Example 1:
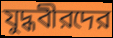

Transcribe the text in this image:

যুদ্ধবীরদের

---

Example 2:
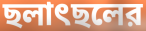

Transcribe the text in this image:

ছলাৎছলের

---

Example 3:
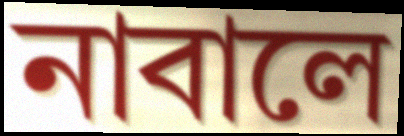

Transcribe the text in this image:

নাবালে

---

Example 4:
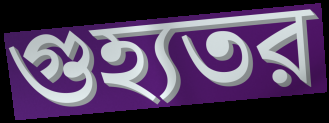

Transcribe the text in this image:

গুহ্যতর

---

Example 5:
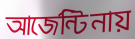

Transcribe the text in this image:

আর্জেন্টিনায়